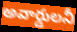
అవార్డులనీ